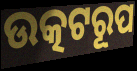
ଉତ୍କଟରୂପ